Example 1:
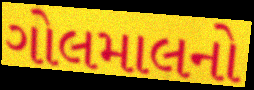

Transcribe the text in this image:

ગોલમાલનો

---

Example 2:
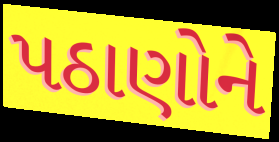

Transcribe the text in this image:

પઠાણોને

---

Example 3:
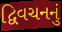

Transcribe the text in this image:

દ્વિવચનનું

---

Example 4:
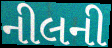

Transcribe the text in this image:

નીલની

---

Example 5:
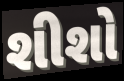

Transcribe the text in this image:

શીશો